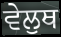
ਵੇਲੁਥ